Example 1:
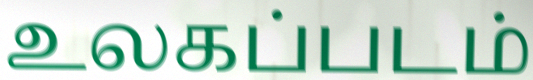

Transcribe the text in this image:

உலகப்படம்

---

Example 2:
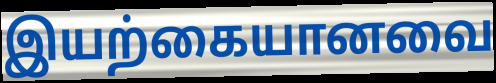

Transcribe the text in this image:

இயற்கையானவை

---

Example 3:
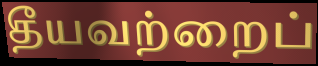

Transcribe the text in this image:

தீயவற்றைப்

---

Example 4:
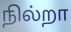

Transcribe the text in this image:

நில்றா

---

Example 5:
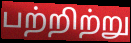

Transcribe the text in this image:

பற்றிற்று